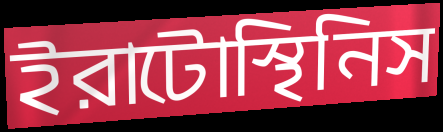
ইরাটোস্থিনিস